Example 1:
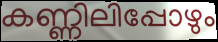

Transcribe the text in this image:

കണ്ണിലിപ്പോഴും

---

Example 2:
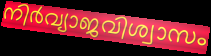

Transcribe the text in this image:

നിർവ്യാജവിശ്വാസം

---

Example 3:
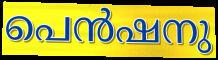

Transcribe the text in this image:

പെൻഷനു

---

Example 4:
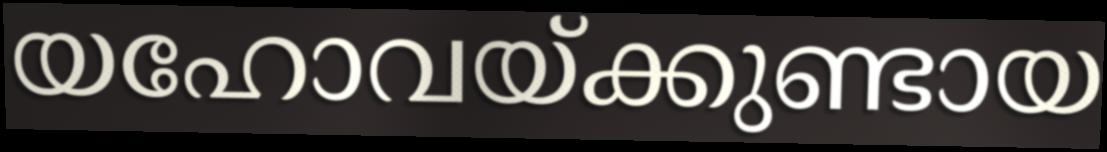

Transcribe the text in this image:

യഹോവയ്ക്കുണ്ടായ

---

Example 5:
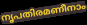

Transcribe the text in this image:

നൃപതിരമണീനാം